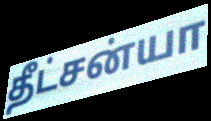
தீட்சன்யா